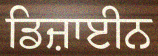
ਡਿਜ਼ਾਈਨ